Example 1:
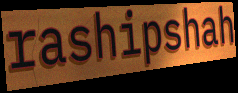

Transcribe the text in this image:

rashipshah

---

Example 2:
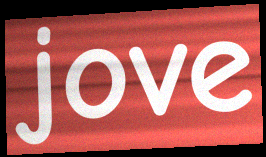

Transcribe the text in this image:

jove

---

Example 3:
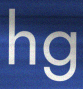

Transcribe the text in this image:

hg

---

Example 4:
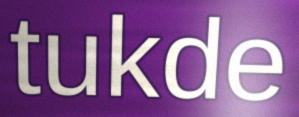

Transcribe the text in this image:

tukde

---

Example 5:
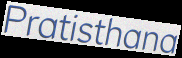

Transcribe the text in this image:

Pratisthana